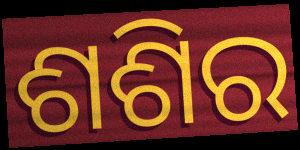
ଶଶିର